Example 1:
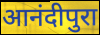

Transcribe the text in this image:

आनंदीपुरा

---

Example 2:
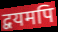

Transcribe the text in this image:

द्वयमपि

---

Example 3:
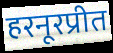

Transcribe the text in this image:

हरनूरप्रीत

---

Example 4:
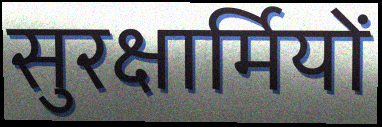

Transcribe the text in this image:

सुरक्षार्मियों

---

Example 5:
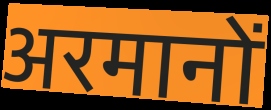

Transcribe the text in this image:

अरमानों